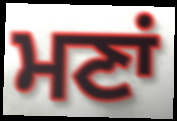
ਮਣਾਂ